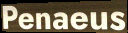
Penaeus